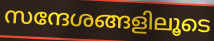
സന്ദേശങ്ങളിലൂടെ